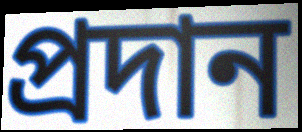
প্ৰদান